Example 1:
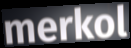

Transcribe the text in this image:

merkol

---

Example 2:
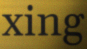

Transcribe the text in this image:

xing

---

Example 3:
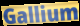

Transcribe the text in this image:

Gallium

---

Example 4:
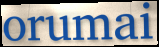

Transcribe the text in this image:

orumai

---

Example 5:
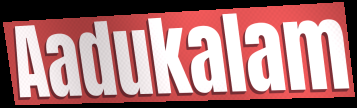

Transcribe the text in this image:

Aadukalam